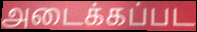
அடைக்கப்பட